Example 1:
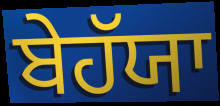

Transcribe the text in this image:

ਬੇਹੱਯਾ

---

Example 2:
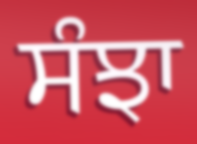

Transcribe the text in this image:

ਸੰਝਾ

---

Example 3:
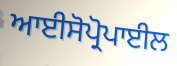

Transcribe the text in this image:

ਆਈਸੋਪ੍ਰੋਪਾਈਲ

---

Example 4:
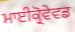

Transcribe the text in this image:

ਮਾਈਕ੍ਰੋਵੇਵਡ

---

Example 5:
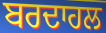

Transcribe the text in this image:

ਬਰਦਾਹਲ